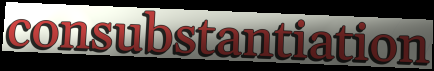
consubstantiation